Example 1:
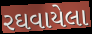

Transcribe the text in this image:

રઘવાયેલા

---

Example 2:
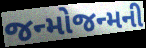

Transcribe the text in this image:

જન્મોજન્મની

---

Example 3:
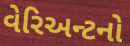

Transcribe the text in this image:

વેરિઅન્ટનો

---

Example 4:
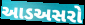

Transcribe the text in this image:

આડઅસરો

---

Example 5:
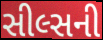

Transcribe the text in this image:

સીલ્સની